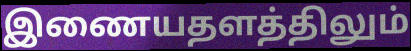
இணையதளத்திலும்